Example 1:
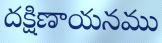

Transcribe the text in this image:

దక్షిణాయనము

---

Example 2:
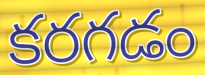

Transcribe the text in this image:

కరగడం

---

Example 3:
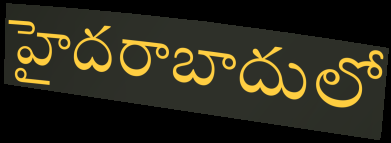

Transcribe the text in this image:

హైదరాబాదులో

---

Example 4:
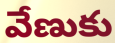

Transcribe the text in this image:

వేణుకు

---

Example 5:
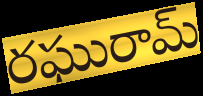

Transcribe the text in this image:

రఘురామ్